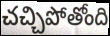
చచ్చిపోతోంది